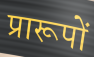
प्रारूपों